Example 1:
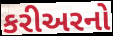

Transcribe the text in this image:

કરીઅરનો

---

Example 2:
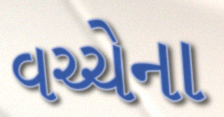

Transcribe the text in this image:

વચ્ચેના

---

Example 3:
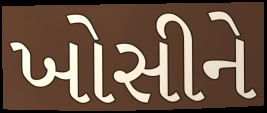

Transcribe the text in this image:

ખોસીને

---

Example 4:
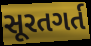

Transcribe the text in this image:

સૂરતગર્ત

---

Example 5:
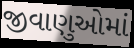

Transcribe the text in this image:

જીવાણુઓમાં